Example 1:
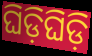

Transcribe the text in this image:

ଘିଡ଼ିଘିଡ଼ି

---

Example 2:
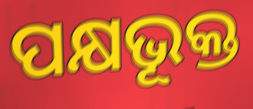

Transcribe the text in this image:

ପକ୍ଷଭୂକ୍ତ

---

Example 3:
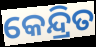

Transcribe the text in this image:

କେନ୍ଦ୍ରିତ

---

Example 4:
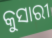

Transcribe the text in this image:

କୁସାରୀ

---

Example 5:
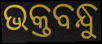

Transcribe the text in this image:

ଭକ୍ତବନ୍ଧୁ